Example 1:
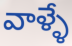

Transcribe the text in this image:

వాళ్ళే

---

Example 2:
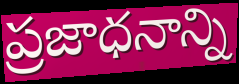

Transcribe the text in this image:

ప్రజాధనాన్ని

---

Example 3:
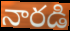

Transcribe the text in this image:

నారడి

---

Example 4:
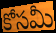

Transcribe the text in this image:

కోసమీ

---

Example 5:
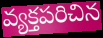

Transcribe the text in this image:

వ్యక్తపరిచిన